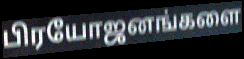
பிரயோஜனங்களை